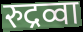
रुद्रव्वा